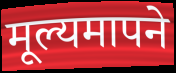
मूल्यमापने